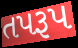
તપરૂપ